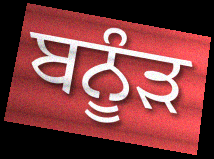
ਬਨੂੰੜ